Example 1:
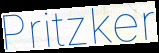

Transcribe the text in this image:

Pritzker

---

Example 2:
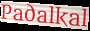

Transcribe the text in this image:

Padalkal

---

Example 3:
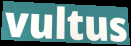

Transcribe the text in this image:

vultus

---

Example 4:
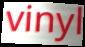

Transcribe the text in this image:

vinyl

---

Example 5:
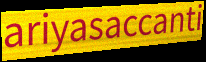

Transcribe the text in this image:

ariyasaccanti